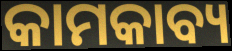
କାମକାବ୍ୟ